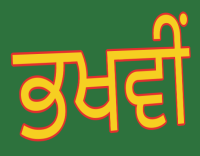
ਭਖਵੀਂ